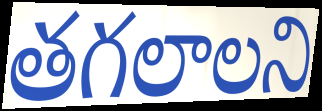
తగలాలని